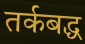
तर्कबद्ध